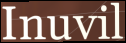
Inuvil